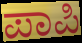
ಪಾಪಿ